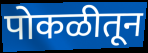
पोकळीतून